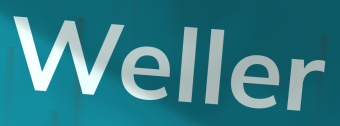
Weller